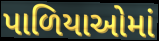
પાળિયાઓમાં